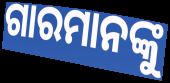
ଗାରମାନଙ୍କୁ